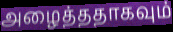
அழைத்ததாகவும்